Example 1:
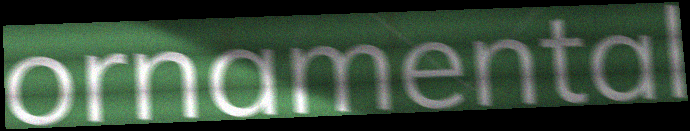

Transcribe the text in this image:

ornamental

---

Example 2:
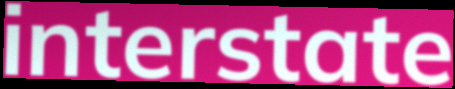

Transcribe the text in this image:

interstate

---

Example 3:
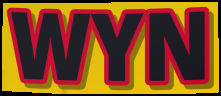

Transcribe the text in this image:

WYN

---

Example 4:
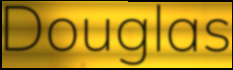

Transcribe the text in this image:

Douglas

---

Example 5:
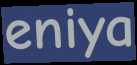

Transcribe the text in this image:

eniya